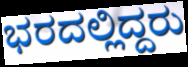
ಭರದಲ್ಲಿದ್ದರು